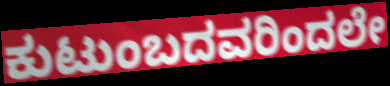
ಕುಟುಂಬದವರಿಂದಲೇ